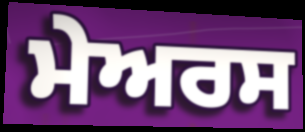
ਮੇਅਰਸ